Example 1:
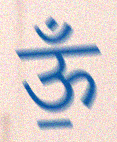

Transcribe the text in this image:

ऊँ॒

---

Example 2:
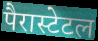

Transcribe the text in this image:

पैरास्टेटल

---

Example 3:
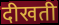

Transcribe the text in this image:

दीखती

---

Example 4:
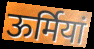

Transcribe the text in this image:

ऊर्मियां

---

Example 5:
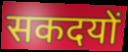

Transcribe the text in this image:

सकदयों